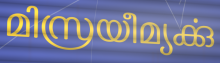
മിസ്രയീമ്യൎക്കു